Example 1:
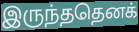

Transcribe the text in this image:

இருந்ததெனக்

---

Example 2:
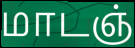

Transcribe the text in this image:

மாடஞ்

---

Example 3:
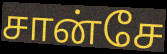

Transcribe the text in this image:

சான்சே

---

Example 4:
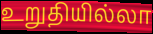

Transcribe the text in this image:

உறுதியில்லா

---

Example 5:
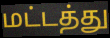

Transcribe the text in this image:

மட்டத்து